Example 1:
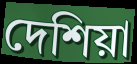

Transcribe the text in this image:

দেশিয়া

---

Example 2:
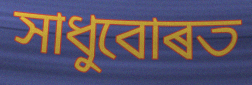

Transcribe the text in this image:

সাধুবোৰত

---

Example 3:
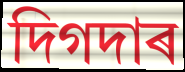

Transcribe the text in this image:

দিগদাৰ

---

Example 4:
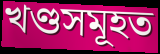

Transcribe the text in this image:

খণ্ডসমূহত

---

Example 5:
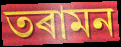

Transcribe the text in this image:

তৰামন